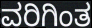
ವರಿಗಿಂತ